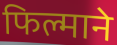
फिल्माने